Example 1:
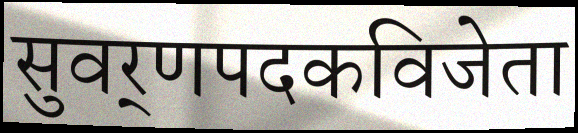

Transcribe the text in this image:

सुवर्णपदकविजेता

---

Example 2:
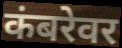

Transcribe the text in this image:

कंबरेवर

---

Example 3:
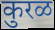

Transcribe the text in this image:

कुरळ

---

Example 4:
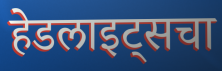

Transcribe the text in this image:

हेडलाइट्सचा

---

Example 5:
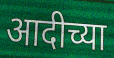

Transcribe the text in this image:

आदीच्या